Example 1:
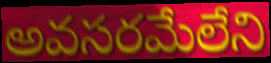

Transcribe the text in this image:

అవసరమేలేని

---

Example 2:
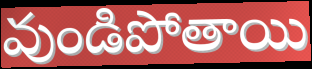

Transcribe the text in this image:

వుండిపోతాయి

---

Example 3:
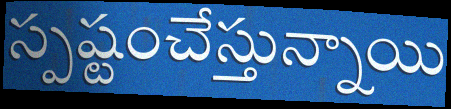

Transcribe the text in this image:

స్పష్టంచేస్తున్నాయి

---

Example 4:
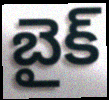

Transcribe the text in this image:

బైక్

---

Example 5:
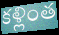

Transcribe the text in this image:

కళ్లింత